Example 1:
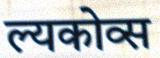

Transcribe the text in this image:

ल्यकोव्स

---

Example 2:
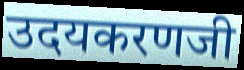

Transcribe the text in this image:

उदयकरणजी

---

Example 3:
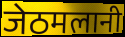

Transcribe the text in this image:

जेठमलानी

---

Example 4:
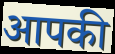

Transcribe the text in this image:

आपकी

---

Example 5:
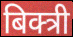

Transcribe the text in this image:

बिक्त्री